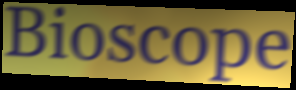
Bioscope